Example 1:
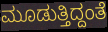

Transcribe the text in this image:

ಮೂಡುತ್ತಿದ್ದಂತೆ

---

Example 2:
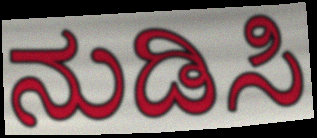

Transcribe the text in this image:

ನುಡಿಸಿ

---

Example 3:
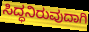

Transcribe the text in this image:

ಸಿದ್ಧನಿರುವುದಾಗಿ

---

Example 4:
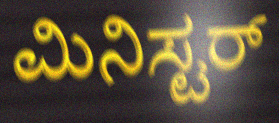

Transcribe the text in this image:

ಮಿನಿಸ್ಟರ್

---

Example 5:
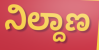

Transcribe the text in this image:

ನಿಲ್ದಾಣ